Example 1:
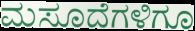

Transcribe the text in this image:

ಮಸೂದೆಗಳಿಗೂ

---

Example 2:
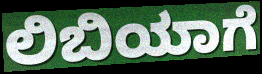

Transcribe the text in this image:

ಲಿಬಿಯಾಗೆ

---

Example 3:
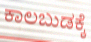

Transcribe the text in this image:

ಕಾಲಬುಡಕ್ಕೆ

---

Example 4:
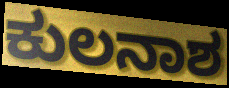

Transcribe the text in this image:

ಕುಲನಾಶ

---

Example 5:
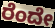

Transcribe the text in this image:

ರೆಂದೇ